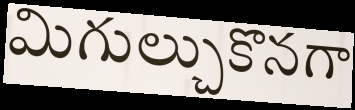
మిగుల్చుకొనగా